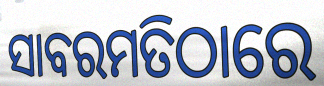
ସାବରମତିଠାରେ